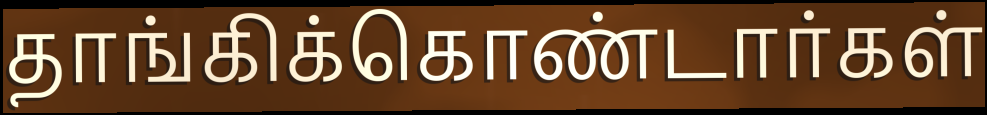
தாங்கிக்கொண்டார்கள்